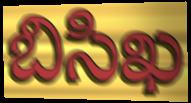
బిసిఖ